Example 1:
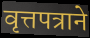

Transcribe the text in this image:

वृत्तपत्राने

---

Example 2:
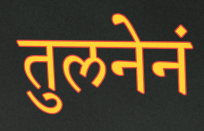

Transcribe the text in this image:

तुलनेनं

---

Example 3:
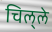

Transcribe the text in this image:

चिल्ले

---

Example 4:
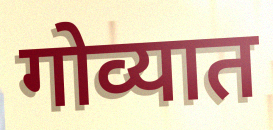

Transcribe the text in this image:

गोव्यात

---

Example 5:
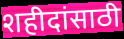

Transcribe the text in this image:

शहीदांसाठी